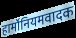
हार्मोनियमवादक